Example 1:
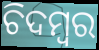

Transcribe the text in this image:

ଚିଦମ୍ବର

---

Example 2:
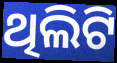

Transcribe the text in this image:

ଥିଲିଟି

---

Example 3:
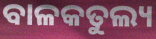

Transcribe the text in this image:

ବାଳକତୁଲ୍ୟ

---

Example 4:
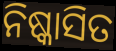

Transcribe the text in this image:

ନିଷ୍କାସିତ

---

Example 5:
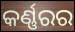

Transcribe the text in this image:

କର୍ଣ୍ଣରର